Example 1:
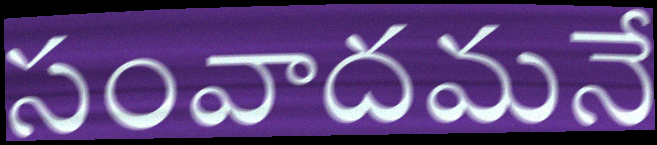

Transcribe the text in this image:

సంవాదమనే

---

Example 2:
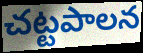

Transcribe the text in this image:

చట్టపాలన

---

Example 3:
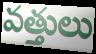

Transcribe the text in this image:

వత్తులు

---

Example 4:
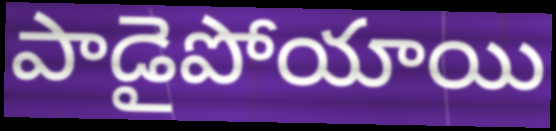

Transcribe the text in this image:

పాడైపోయాయి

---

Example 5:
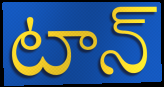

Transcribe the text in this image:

టాన్